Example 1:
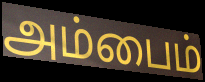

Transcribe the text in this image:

அம்பைம்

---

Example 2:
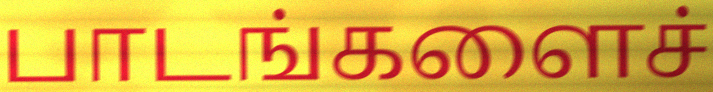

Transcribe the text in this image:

பாடங்களைச்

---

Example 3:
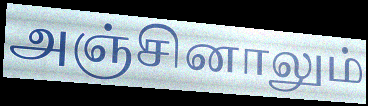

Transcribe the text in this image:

அஞ்சினாலும்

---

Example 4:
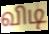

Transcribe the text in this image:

விடி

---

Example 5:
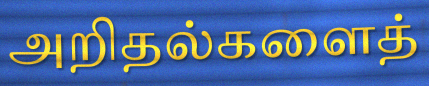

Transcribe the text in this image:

அறிதல்களைத்